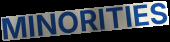
MINORITIES